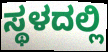
ಸ್ಥಳದಲ್ಲಿ